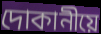
দোকানীয়ে